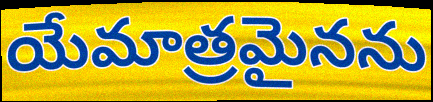
యేమాత్రమైనను